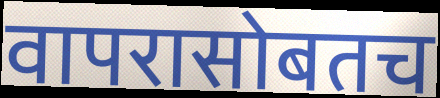
वापरासोबतच